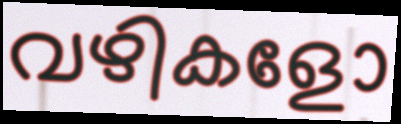
വഴികളോ